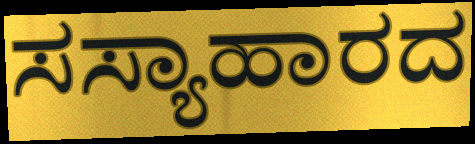
ಸಸ್ಯಾಹಾರದ